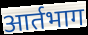
आर्तभाग